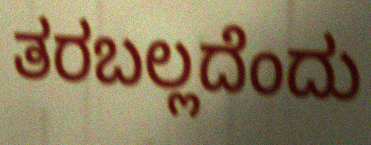
ತರಬಲ್ಲದೆಂದು